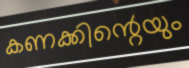
കണക്കിന്റെയും